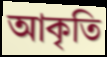
আকৃতি